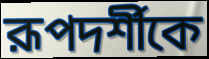
রূপদর্শীকে